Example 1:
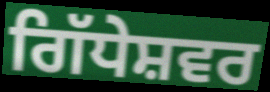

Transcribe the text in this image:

ਗਿੱਧੇਸ਼ਵਰ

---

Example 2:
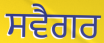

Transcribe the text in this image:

ਸਵੈਗਰ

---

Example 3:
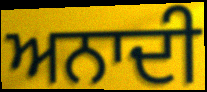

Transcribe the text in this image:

ਅਨਾਦੀ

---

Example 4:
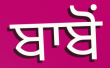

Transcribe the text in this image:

ਬਾਬੋਂ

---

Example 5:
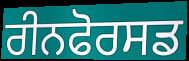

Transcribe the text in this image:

ਰੀਨਫੋਰਸਡ